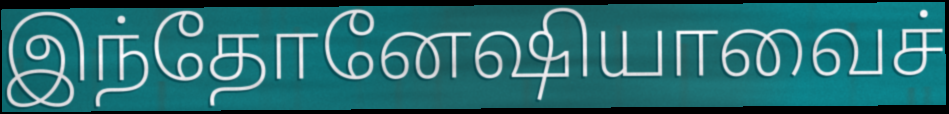
இந்தோனேஷியாவைச்